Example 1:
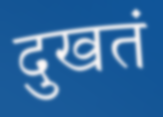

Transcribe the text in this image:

दुखतं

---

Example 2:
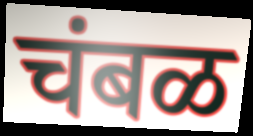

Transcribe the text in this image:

चंबळ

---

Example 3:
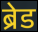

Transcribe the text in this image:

ब्रेड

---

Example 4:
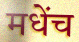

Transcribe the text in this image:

मधेंच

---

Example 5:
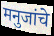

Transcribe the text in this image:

मनुजांचे